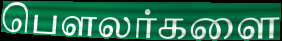
பௌலர்களை